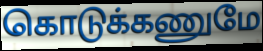
கொடுக்கணுமே